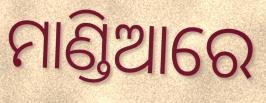
ମାଣ୍ଡିଆରେ